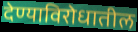
देण्याविरोधातील